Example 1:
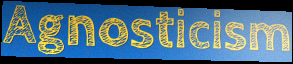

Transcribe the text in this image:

Agnosticism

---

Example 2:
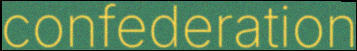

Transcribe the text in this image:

confederation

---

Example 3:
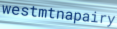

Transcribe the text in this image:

westmtnapairy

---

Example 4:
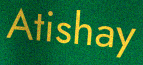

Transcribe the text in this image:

Atishay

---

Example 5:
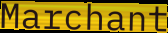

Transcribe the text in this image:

Marchant